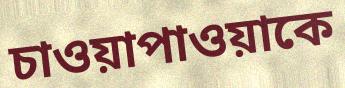
চাওয়াপাওয়াকে